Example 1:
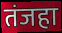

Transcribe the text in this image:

तंजहा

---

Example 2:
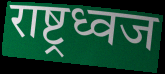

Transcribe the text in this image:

राष्ट्रध्वज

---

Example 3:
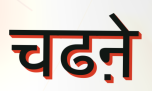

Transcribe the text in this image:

चढऩे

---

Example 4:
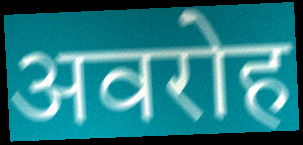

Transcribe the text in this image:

अवरोह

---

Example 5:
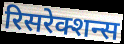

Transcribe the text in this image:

रिसरेक्शन्स